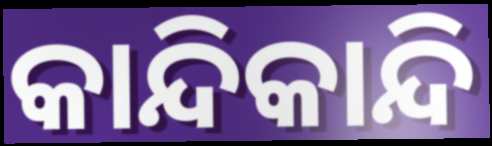
କାନ୍ଦିକାନ୍ଦି